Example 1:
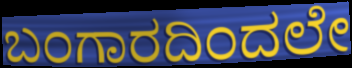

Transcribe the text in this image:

ಬಂಗಾರದಿಂದಲೇ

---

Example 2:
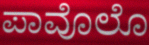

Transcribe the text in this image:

ಪಾವೊಲೊ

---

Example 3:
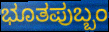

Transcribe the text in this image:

ಭೂತಪುಬ್ಬಂ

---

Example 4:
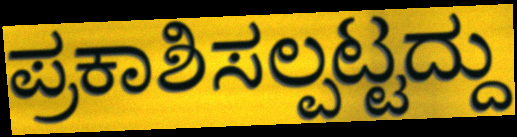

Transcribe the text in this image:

ಪ್ರಕಾಶಿಸಲ್ಪಟ್ಟದ್ದು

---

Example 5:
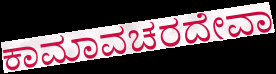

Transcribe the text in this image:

ಕಾಮಾವಚರದೇವಾ